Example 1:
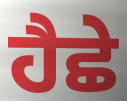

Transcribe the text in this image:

ਹੈਛੇ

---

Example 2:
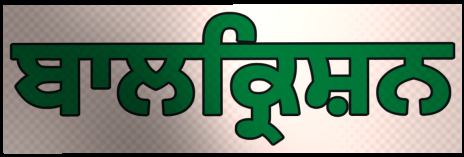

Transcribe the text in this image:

ਬਾਲਕ੍ਰਿਸ਼ਨ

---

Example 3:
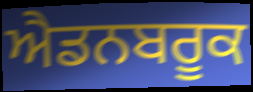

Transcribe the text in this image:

ਐਡਨਬਰੂਕ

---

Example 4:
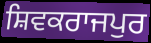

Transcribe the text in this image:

ਸ਼ਿਵਕਰਾਜਪੁਰ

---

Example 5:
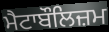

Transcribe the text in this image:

ਮੈਟਾਬੌਲਿਜ਼ਮ